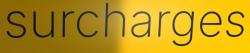
surcharges